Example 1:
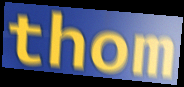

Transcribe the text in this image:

thom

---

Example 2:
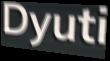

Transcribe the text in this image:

Dyuti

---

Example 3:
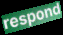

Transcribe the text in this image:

respond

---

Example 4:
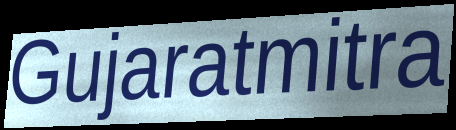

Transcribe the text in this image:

Gujaratmitra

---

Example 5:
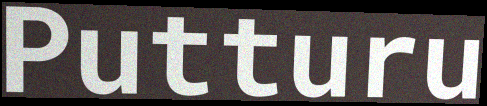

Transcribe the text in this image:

Putturu